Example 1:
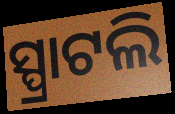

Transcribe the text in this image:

ସ୍ପ୍ରାଟଲି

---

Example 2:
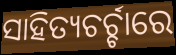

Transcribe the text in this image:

ସାହିତ୍ୟଚର୍ଚ୍ଚାରେ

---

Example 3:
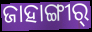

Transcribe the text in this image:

ଜାହାଙ୍ଗୀର୍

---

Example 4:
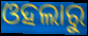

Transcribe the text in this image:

ଓହଲାରୁ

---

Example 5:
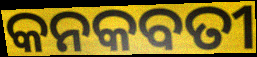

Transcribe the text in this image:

କନକବତୀ